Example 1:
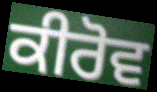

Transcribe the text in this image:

ਕੀਰੋਵ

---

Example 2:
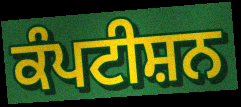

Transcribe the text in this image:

ਕੰਪਟੀਸ਼ਨ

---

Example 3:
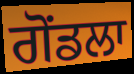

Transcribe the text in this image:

ਗੋਂਡਲਾ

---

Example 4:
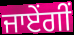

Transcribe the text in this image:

ਜਾਏਂਗੀਂ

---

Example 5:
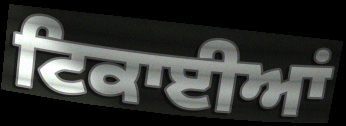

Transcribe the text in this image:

ਟਿਕਾਈਆਂ